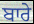
ਬਾਰੇ